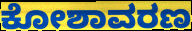
ಕೋಶಾವರಣ